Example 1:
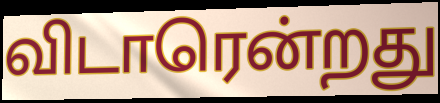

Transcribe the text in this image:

விடாரென்றது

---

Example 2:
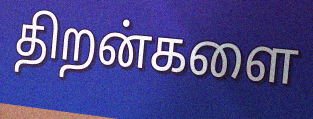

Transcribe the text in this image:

திறன்களை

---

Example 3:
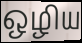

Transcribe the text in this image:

ஒழிய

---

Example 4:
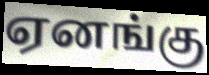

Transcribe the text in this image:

ஏனங்கு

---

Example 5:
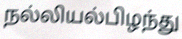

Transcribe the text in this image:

நல்லியல்பிழந்து